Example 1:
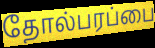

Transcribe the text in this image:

தோல்பரப்பை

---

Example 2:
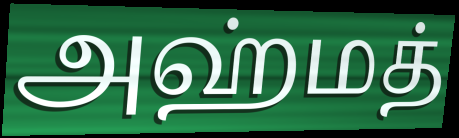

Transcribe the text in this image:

அஹ்மத்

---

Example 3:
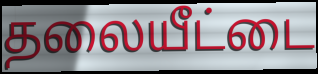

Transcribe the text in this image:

தலையீட்டை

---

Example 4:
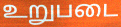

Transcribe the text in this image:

உறுபடை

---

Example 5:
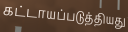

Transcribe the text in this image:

கட்டாயப்படுத்தியது